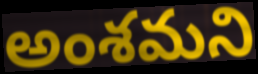
అంశమని